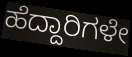
ಹೆದ್ದಾರಿಗಳೇ